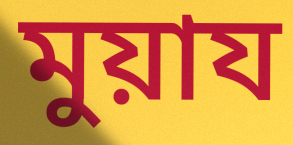
মুয়ায